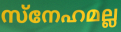
സ്നേഹമല്ല